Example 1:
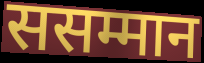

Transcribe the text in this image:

ससम्मान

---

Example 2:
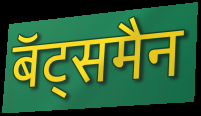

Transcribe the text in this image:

बॅट्समैन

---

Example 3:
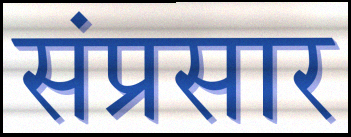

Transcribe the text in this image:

संप्रसार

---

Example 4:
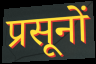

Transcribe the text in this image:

प्रसूनों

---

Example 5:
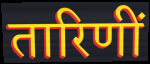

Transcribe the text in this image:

तारिणीं